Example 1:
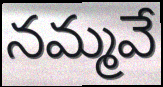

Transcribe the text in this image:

నమ్మవే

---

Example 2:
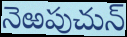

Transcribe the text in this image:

నెఱపుచున్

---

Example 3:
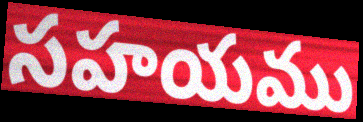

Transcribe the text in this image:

సహయము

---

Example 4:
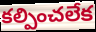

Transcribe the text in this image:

కల్పించలేక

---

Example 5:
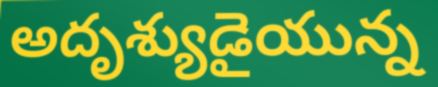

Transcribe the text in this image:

అదృశ్యుడైయున్న